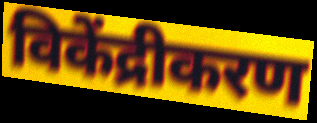
विकेंद्रीकरण